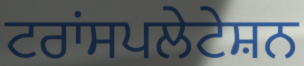
ਟਰਾਂਸਪਲੇਟੇਸ਼ਨ